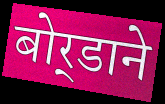
बोर्डाने